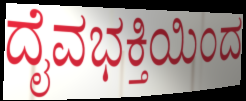
ದೈವಭಕ್ತಿಯಿಂದ